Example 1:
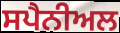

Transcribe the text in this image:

ਸਪੈਨੀਅਲ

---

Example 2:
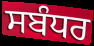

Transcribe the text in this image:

ਸਬੰਧਰ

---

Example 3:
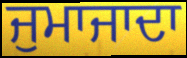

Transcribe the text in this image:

ਜੁਮਾਜਾਦਾ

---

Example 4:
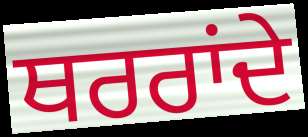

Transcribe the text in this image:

ਥਰਰਾਂਦੇ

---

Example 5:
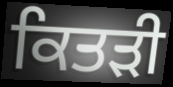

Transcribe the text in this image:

ਕਿਤੜੀ